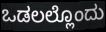
ಒಡಲಲ್ಲೊಂದು